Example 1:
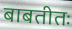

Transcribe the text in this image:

बाबतीतः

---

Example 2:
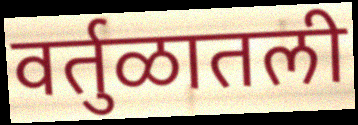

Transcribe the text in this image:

वर्तुळातली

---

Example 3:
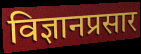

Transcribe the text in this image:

विज्ञानप्रसार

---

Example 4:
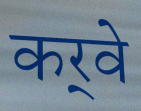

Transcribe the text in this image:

कर्वे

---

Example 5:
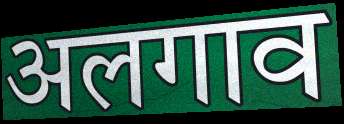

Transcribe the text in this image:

अलगाव